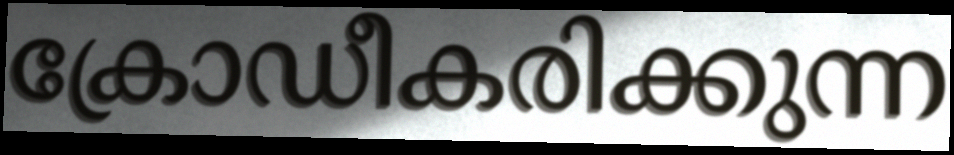
ക്രോഡീകരിക്കുന്ന